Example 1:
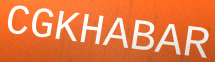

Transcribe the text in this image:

CGKHABAR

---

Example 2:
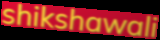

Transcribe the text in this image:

shikshawali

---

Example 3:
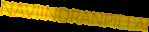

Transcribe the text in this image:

NAVIINDRANPILLAI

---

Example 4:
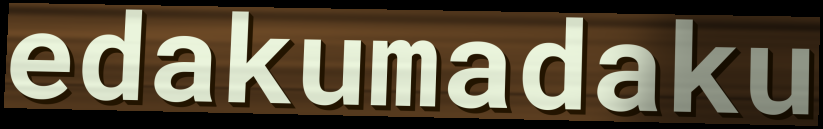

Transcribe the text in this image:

edakumadaku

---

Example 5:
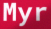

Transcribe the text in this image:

Myr